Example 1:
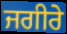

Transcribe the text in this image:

ਜਗੀਰੇ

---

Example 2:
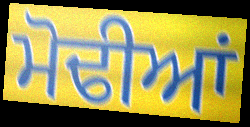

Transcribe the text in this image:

ਮੋਢੀਆਂ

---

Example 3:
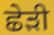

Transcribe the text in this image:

ਛੇੜੀ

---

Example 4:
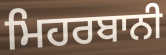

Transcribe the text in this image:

ਮਿਹਰਬਾਨੀ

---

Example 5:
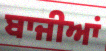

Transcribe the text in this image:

ਬਾਜੀਆਂ